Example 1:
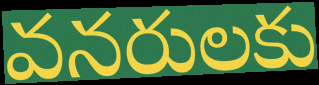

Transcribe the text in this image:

వనరులకు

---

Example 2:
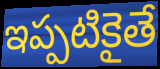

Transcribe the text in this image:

ఇప్పటికైతే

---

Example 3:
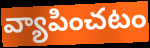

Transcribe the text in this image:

వ్యాపించటం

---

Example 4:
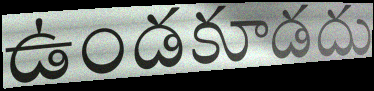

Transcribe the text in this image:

ఉండకూడదు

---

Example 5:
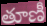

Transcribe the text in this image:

తూణీ